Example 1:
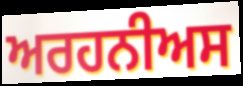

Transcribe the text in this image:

ਅਰਹਨੀਅਸ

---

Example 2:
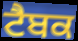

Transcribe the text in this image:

ਟੈਬਕ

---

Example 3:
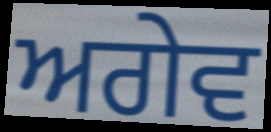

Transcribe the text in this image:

ਅਗੇਵ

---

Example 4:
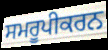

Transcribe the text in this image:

ਸਮਰੂਪੀਕਰਨ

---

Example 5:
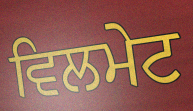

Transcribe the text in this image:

ਵਿਲਮੇਟ